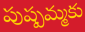
పుష్పమ్మకు